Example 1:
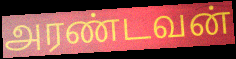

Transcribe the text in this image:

அரண்டவன்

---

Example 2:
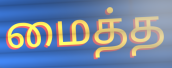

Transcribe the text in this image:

மைத்த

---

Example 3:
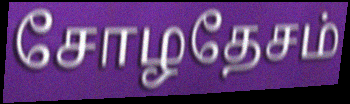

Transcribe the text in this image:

சோழதேசம்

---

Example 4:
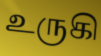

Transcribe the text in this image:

உருகி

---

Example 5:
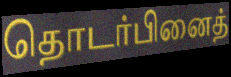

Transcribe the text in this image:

தொடர்பினைத்